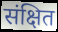
संक्षित